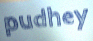
pudhey